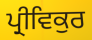
ਪ੍ਰੀਵਿਕੁਰ